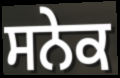
ਸਨੇਕ